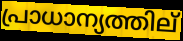
പ്രാധാന്യത്തില്